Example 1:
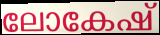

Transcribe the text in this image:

ലോകേഷ്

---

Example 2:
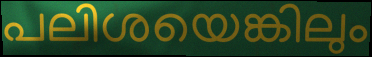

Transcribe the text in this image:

പലിശയെങ്കിലും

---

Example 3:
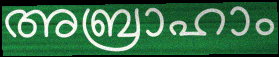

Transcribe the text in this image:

അബ്രാഹാം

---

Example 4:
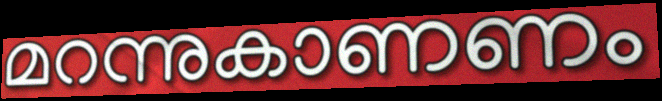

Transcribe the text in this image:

മറന്നുകാണണം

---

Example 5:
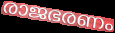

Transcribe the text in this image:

രാജഭരണം